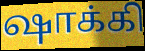
ஷாக்கி